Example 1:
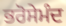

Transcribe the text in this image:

ਭਰੋਸੇਮੰਦ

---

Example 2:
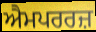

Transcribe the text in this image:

ਐਮਪਰਰਜ਼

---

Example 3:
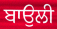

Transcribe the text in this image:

ਬਾਉਲੀ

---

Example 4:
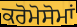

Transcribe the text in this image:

ਕਰੋਮੋਸੋਮਾਂ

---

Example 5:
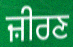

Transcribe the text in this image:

ਜ਼ੀਰਣ